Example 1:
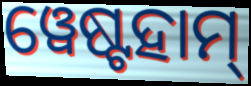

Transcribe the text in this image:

ୱେଷ୍ଟହାମ୍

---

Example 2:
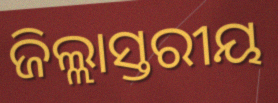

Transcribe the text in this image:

ଜିଲ୍ଲାସ୍ତରୀୟ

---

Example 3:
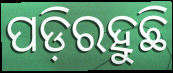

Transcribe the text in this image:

ପଡ଼ିରହୁଛି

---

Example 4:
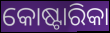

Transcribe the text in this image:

କୋଷ୍ଟାରିକା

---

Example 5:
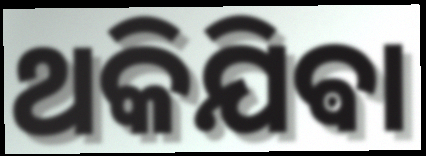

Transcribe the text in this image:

ଥକିଯିଵା